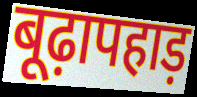
बूढ़ापहाड़